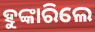
ହୁଙ୍କାରିଲେ